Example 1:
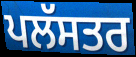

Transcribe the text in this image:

ਪਲੱਸਤਰ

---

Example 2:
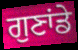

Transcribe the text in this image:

ਗੁਣਾਂਡੇ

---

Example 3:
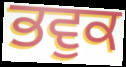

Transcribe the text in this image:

ਭਵੁਕ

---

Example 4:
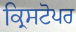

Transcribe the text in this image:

ਕ੍ਰਿਸਟੋਪਰ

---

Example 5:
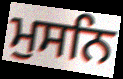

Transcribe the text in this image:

ਮੁਸਨਿ